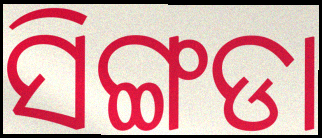
ସିଙ୍ଗଡା